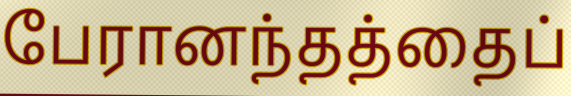
பேரானந்தத்தைப்